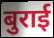
बुराई